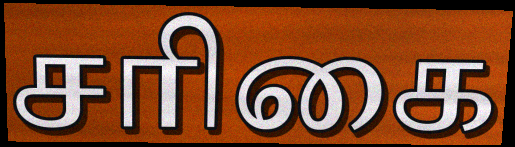
சரிகை